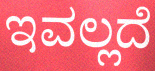
ಇವಲ್ಲದೆ